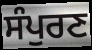
ਸੰਪੁਰਣ